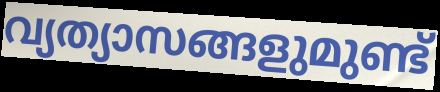
വ്യത്യാസങ്ങളുമുണ്ട്